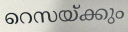
റെസയ്ക്കും